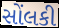
સોંલકી